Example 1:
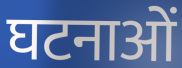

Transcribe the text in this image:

घटनाओं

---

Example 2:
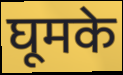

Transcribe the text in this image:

घूमके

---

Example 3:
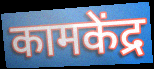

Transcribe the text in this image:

कामकेंद्र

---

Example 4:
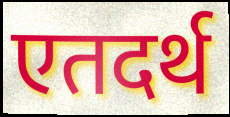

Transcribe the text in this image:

एतदर्थ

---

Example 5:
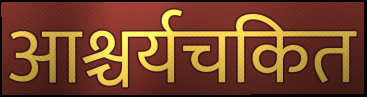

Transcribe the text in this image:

आश्चर्यचकित